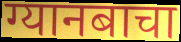
ग्यानबाचा